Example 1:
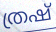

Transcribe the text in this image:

ത്രഷ്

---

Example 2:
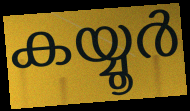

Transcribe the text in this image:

കയ്യൂർ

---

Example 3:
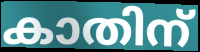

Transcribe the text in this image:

കാതിന്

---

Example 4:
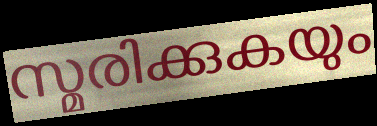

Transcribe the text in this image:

സ്മരിക്കുകയും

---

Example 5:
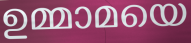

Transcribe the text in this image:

ഉമ്മാമയെ